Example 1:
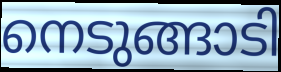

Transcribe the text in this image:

നെടുങ്ങാടി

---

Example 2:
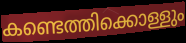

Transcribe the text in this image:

കണ്ടെത്തിക്കൊള്ളും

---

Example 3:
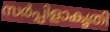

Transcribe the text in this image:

സർപ്പിളാകൃതി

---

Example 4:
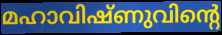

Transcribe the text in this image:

മഹാവിഷ്ണുവിന്റെ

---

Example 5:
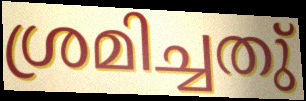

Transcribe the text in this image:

ശ്രമിച്ചതു്